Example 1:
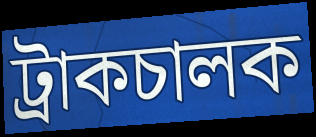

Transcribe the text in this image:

ট্রাকচালক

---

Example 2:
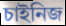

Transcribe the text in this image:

চাইনিজ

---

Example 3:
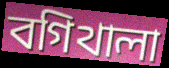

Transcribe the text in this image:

বগিথালা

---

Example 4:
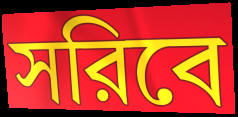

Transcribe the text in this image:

সরিবে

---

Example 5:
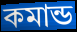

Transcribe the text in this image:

কমান্ড